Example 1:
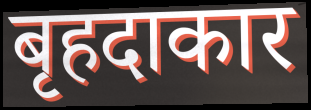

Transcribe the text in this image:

बृहदाकार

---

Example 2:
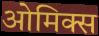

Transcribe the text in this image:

ओमिक्स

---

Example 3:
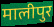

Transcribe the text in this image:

मालीपुर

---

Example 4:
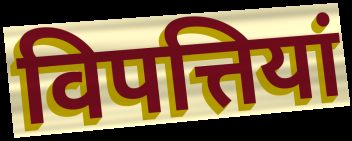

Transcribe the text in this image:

विपत्तियां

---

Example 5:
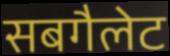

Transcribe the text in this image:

सबगैलेट